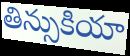
తిన్సుకియా